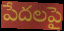
పేదలపై